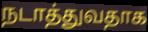
நடாத்துவதாக